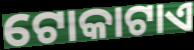
ଟୋକାଟାଏ